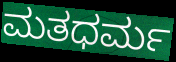
ಮತಧರ್ಮ